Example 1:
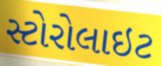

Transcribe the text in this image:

સ્ટોરોલાઇટ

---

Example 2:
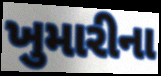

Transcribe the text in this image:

ખુમારીના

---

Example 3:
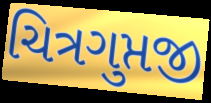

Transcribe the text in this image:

ચિત્રગુપ્તજી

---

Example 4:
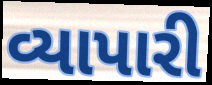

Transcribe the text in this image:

વ્યાપારી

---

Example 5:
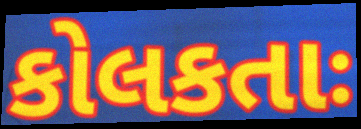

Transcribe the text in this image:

કોલકતાઃ